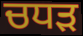
ਚਧੜ